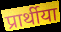
प्रार्थीया